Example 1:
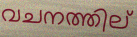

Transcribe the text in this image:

വചനത്തില്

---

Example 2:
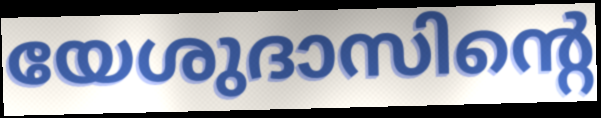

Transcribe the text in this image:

യേശുദാസിന്റെ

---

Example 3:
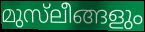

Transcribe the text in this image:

മുസ്‌ലീങ്ങളും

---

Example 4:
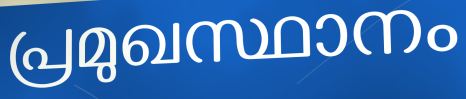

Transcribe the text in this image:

പ്രമുഖസ്ഥാനം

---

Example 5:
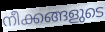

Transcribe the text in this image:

നീക്കങ്ങളുടെ